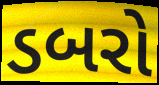
ડબરો